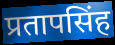
प्रतापसिंह